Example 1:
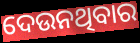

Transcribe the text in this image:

ଦେଉନଥିବାର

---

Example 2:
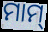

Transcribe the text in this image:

ମାମ୍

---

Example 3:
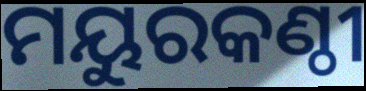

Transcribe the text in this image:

ମୟୁରକଣ୍ଠୀ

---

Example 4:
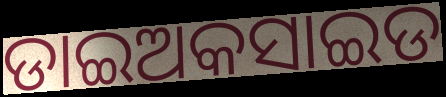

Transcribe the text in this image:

ଡାଇଅକସାଇଡ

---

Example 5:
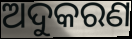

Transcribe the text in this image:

ଅଦୁକରଣ